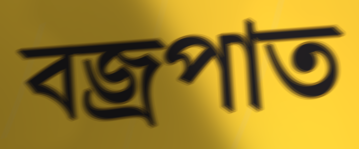
বজ্রপাত